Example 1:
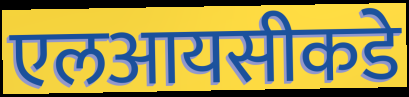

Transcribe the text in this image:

एलआयसीकडे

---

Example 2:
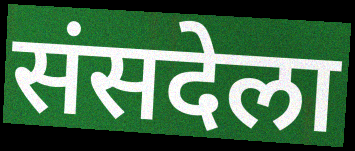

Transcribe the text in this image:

संसदेला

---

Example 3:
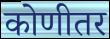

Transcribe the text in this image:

कोणीतर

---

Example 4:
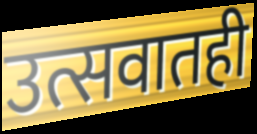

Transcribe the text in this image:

उत्सवातही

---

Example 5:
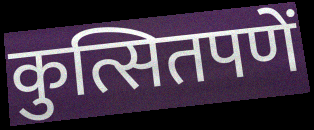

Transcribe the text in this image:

कुत्सितपणें